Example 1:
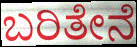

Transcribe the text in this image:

ಬರಿತೇನೆ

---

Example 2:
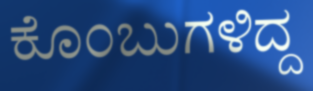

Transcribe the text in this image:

ಕೊಂಬುಗಳಿದ್ದ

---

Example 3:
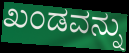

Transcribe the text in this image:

ಖಂಡವನ್ನು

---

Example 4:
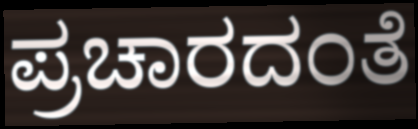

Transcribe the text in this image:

ಪ್ರಚಾರದಂತೆ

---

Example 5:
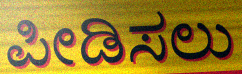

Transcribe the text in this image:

ಪೀಡಿಸಲು